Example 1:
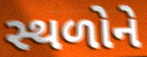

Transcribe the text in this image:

સ્થળોને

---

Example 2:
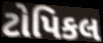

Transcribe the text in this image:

ટોપિકલ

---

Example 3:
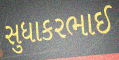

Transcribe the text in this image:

સુધાકરભાઈ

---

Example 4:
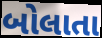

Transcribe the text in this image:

બોલાતા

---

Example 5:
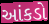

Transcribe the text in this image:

આંકડો